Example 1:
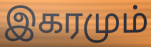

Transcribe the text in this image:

இகரமும்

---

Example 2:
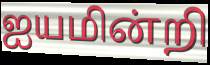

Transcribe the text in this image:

ஐயமின்றி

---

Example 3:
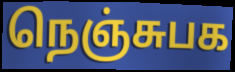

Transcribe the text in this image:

நெஞ்சுபக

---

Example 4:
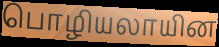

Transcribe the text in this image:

பொழியலாயின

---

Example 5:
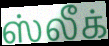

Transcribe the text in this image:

ஸ்லீக்